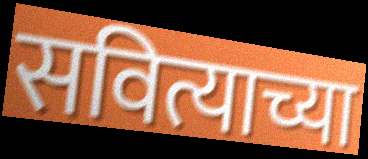
सवित्याच्या